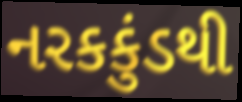
નરકકુંડથી